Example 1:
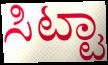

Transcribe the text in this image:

ಸಿಟ್ಟಾ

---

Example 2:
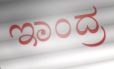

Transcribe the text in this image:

ಇಾಂದ್ರ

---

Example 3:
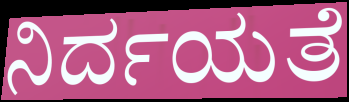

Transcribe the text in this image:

ನಿರ್ದಯತೆ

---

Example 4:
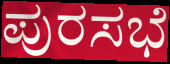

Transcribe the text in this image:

ಪುರಸಭೆ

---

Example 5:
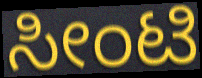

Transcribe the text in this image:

ಸೀಂಟಿ